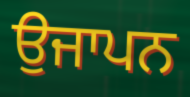
ਉਜਾਪਨ